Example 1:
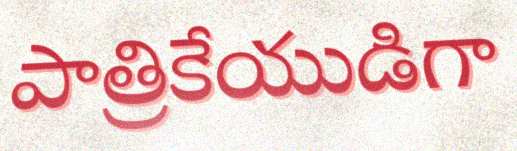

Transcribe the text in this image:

పాత్రికేయుడిగా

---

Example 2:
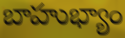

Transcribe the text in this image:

బాహుభ్యాం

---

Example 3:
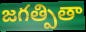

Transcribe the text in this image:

జగత్పితా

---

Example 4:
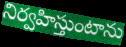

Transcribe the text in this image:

నిర్వహిస్తుంటాను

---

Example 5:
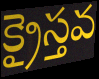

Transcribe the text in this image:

క్రైస్తవ